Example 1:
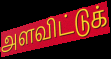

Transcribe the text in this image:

அளவிட்டுக்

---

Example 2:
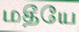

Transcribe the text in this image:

மதீயே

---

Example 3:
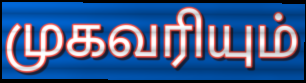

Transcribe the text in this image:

முகவரியும்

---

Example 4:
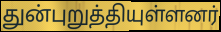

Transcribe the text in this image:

துன்புறுத்தியுள்ளனர்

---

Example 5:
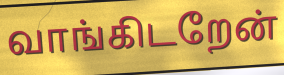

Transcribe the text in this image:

வாங்கிடறேன்